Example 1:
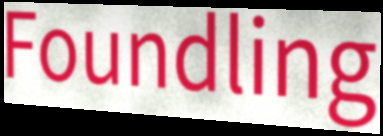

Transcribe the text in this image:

Foundling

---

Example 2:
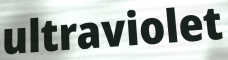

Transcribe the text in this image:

ultraviolet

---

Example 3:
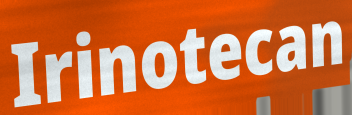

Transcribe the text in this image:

Irinotecan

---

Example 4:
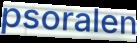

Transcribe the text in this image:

psoralen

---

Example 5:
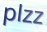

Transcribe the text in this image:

plzz